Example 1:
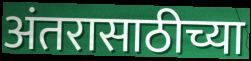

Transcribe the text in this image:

अंतरासाठीच्या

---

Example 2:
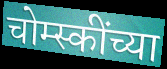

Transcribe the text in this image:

चोम्स्कींच्या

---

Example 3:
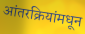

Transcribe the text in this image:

आंतरक्रियांमधून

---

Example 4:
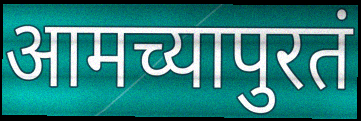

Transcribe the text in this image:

आमच्यापुरतं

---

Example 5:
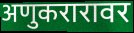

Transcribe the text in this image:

अणुकरारावर